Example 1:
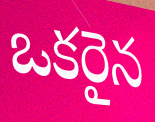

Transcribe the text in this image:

ఒకరైన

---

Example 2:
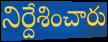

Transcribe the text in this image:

నిర్దేశించారు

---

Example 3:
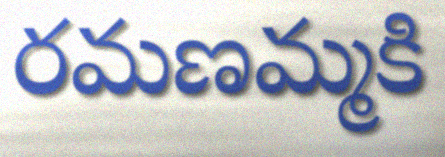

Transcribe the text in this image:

రమణమ్మకి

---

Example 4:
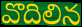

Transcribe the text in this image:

వొదిలిన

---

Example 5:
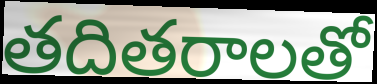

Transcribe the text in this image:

తదితరాలతో